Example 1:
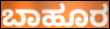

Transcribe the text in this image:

ಬಾಹೂರ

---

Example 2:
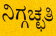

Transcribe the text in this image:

ನಿಗ್ಗಚ್ಛತಿ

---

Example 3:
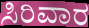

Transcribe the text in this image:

ಸಿರಿವಾರ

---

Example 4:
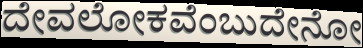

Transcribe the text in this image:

ದೇವಲೋಕವೆಂಬುದೇನೋ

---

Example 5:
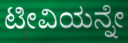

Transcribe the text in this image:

ಟೀವಿಯನ್ನೇ